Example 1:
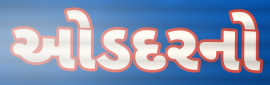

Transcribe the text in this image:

ઓડદરનો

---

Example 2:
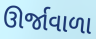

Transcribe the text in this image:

ઊર્જાવાળા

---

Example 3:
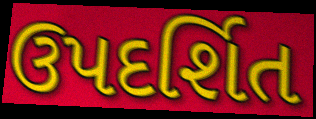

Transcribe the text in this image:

ઉપદર્શિત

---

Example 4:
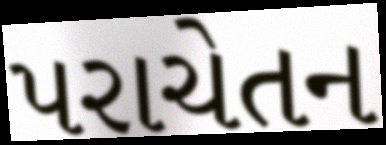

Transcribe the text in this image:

પરાચેતન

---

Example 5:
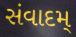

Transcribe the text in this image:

સંવાદમ્